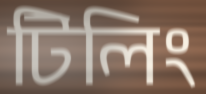
টিলিং